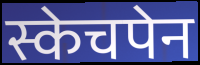
स्केचपेन